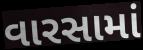
વારસામાં